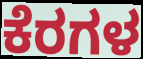
ಕೆರಗಳ